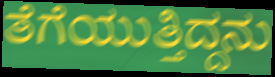
ತೆಗೆಯುತ್ತಿದ್ದನು